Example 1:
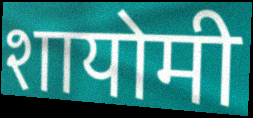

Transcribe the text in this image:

शायोमी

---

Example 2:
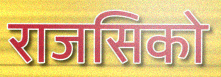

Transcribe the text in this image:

राजसिको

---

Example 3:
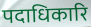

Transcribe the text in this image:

पदाधिकारि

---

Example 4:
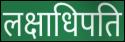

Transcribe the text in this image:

लक्षाधिपति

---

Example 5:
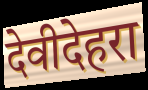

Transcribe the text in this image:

देवीदेहरा